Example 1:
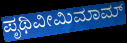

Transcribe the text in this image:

ಪೃಥಿವೀಮಿಮಾಮ್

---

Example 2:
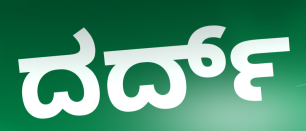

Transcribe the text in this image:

ದರ್ದ್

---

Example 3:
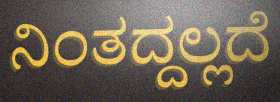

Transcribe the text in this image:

ನಿಂತದ್ದಲ್ಲದೆ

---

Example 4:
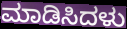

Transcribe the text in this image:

ಮಾಡಿಸಿದಳು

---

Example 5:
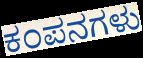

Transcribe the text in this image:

ಕಂಪನಗಳು